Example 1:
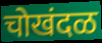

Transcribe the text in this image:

चोखंदळ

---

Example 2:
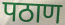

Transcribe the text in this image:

पठाण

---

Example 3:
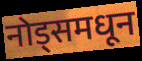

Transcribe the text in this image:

नोड्समधून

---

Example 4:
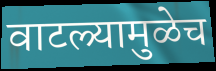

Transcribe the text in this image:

वाटल्यामुळेच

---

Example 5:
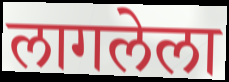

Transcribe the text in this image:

लागलेला